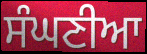
ਸੰਘਣੀਆ